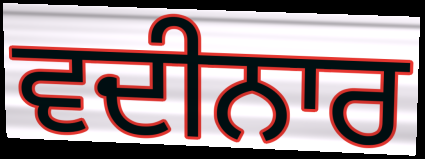
ਵਦੀਨਾਰ